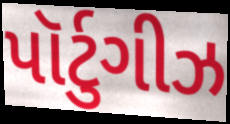
પૉર્ટુગીઝ